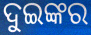
ଦୁଇଙ୍କର